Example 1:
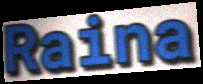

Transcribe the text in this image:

Raina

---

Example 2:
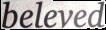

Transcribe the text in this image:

beleved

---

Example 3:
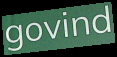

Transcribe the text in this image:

govind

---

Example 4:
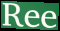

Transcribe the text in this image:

Ree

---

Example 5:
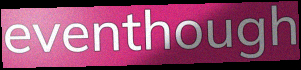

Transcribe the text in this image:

eventhough